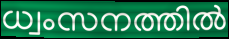
ധ്വംസനത്തിൽ